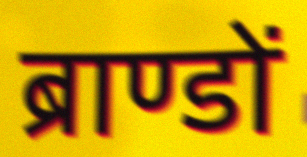
ब्राण्डों